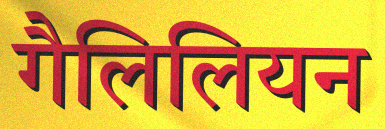
गैलिलियन